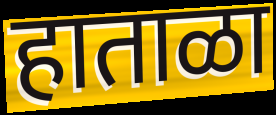
हाताळा